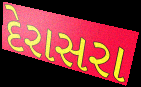
દેરાસરા